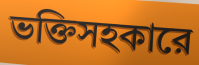
ভক্তিসহকারে